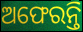
ଅଫେରନ୍ତି